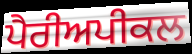
ਪੈਰੀਅਪੀਕਲ